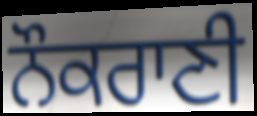
ਨੌਕਰਾਣੀ